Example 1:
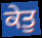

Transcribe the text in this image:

ਕੇਤੁ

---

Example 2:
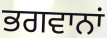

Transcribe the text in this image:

ਭਗਵਾਨਾਂ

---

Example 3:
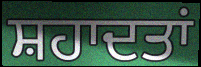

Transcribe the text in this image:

ਸ਼ਹਾਦਤਾਂ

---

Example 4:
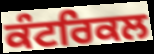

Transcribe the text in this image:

ਕੰਟਰਿਕਲ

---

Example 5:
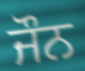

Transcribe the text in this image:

ਜੌਨ